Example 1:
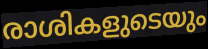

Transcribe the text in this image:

രാശികളുടെയും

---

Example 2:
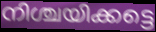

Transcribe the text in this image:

നിശ്ചയിക്കട്ടെ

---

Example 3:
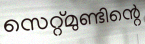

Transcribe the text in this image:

സെറ്റ്മുണ്ടിന്റെ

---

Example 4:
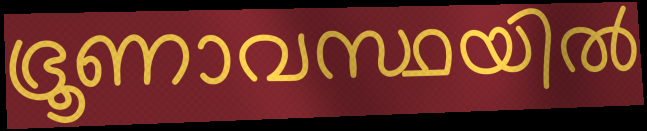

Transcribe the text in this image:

ഭ്രൂണാവസ്ഥയിൽ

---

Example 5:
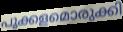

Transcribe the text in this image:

പൂക്കളമൊരുക്കി